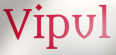
Vipul